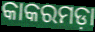
କାକରମଡ଼ା